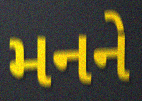
મનને